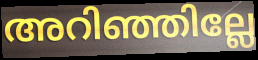
അറിഞ്ഞില്ലേ